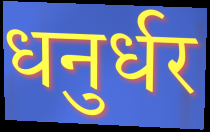
धनुर्धर